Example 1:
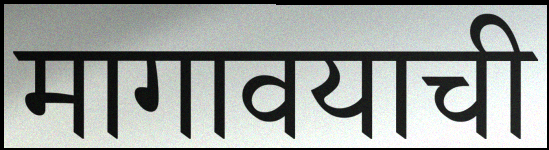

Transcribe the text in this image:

मागावयाची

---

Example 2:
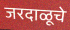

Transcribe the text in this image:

जरदाळूचे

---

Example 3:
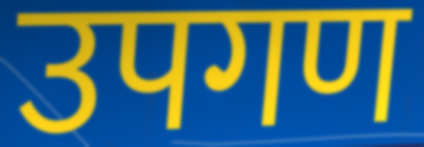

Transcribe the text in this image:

उपगण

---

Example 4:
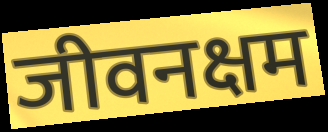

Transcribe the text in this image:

जीवनक्षम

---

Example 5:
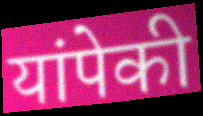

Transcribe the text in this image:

यांपेकी